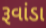
રૂવાંડા